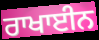
ਰਾਖਾਈਨ